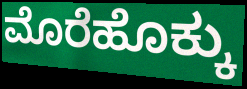
ಮೊರೆಹೊಕ್ಕು